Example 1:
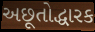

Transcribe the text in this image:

અછૂતોદ્ધારક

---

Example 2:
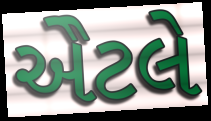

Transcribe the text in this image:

એેટલે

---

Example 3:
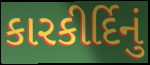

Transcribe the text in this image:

કારકીર્દિનું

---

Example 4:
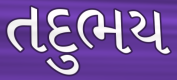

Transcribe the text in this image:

તદુભય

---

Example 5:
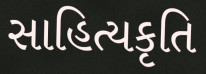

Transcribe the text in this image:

સાહિત્યકૃતિ